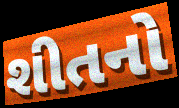
શીતનો